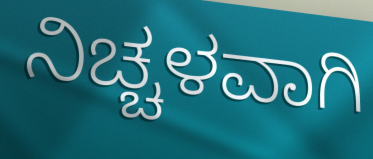
ನಿಚ್ಚಳವಾಗಿ